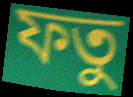
ফতু